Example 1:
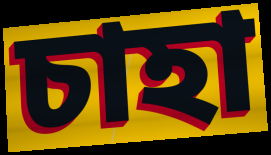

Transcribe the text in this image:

চাহা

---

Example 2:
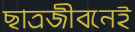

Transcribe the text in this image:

ছাত্রজীবনেই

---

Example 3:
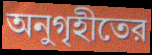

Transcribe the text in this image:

অনুগৃহীতের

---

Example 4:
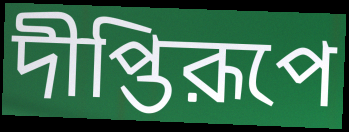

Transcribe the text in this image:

দীপ্তিরূপে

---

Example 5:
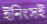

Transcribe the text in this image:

ইনিংসই